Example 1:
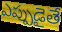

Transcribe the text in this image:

ఎప్పుడైతే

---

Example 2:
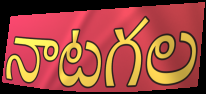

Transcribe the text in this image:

నాటగల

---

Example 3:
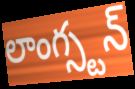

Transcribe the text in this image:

లాంగ్స్టన్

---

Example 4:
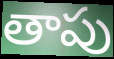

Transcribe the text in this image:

తాపు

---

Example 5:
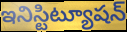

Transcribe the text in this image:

ఇనిస్టిట్యూషన్